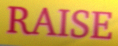
RAISE